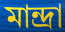
মান্দ্রা